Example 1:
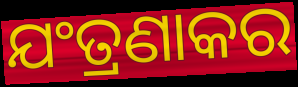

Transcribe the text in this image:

ଯଂତ୍ରଣାକର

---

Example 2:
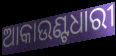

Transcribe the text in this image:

ଆକାଉଣ୍ଟଧାରୀ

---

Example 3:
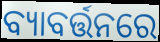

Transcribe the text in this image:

ବ୍ୟାବର୍ତ୍ତନରେ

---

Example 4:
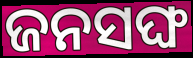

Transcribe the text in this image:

ଜନସଙ୍ଘ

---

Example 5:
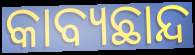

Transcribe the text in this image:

କାବ୍ୟଛାନ୍ଦ